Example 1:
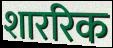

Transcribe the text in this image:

शाररिक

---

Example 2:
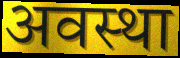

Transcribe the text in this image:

अवस्था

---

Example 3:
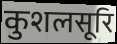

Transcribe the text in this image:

कुशलसूरि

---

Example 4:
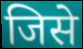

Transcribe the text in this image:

जिसे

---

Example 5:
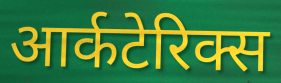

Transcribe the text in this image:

आर्कटेरिक्स